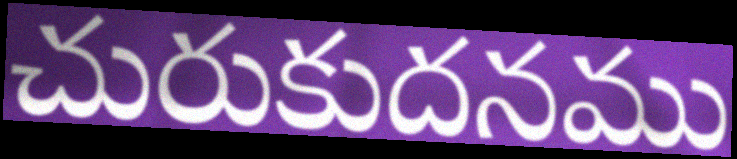
చురుకుదనము